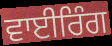
ਵਾਈਰਿੰਗ